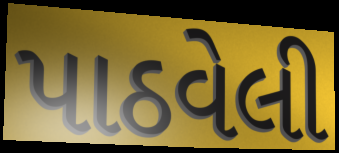
પાઠવેલી